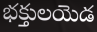
భక్తులయెడ